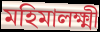
মহিমালক্ষ্মী